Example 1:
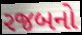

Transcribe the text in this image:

રજબનો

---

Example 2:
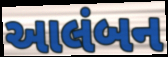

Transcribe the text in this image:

આલંબન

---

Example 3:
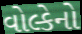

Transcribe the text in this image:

વોલ્કેનો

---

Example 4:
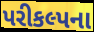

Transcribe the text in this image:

પરીકલ્પના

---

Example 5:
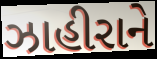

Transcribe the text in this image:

ઝાહીરાને